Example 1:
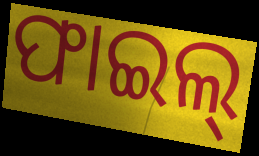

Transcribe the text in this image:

ଫାଇଲ୍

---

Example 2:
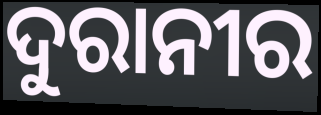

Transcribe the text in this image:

ଦୁରାନୀର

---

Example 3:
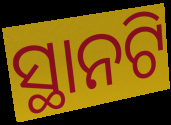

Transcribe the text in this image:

ସ୍ଥାନଟି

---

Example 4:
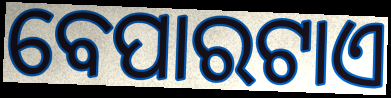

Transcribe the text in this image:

ବେପାରଟାଏ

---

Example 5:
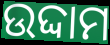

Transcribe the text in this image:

ଉଦ୍ଦାମ